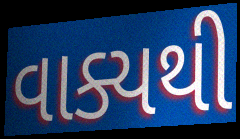
વાક્યથી